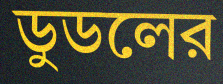
ডুডলের